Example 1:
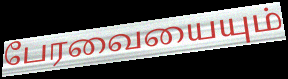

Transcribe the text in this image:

பேரவையையும்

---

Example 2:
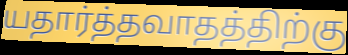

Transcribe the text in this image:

யதார்த்தவாதத்திற்கு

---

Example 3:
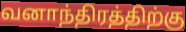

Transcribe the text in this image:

வனாந்திரத்திற்கு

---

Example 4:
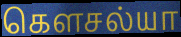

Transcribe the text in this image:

கௌசல்யா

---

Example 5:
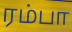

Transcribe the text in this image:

ரம்பா